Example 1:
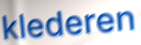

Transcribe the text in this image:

klederen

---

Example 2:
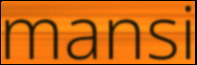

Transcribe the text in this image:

mansi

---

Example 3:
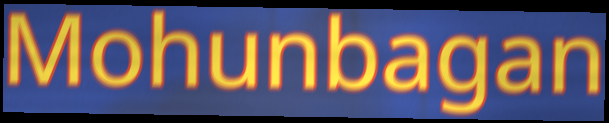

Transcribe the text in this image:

Mohunbagan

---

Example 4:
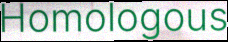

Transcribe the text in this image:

Homologous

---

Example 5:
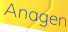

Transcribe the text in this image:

Anagen